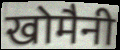
खोमैनी